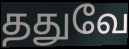
ததுவே